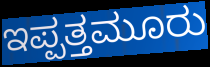
ಇಪ್ಪತ್ತಮೂರು